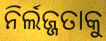
ନିର୍ଲଜ୍ଜତାକୁ